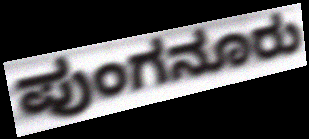
ಪುಂಗನೂರು